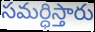
సమర్ధిస్తారు